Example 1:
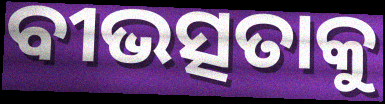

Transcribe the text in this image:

ବୀଭତ୍ସତାକୁ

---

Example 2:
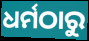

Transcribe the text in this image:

ଧର୍ମଠାରୁ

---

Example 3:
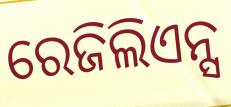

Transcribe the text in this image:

ରେଜିଲିଏନ୍ସ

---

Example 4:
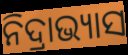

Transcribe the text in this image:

ନିଦ୍ରାଭ୍ୟାସ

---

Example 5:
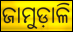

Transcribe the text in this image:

ଜାମୁଡ଼ାଳି